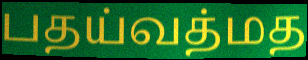
பதய்வத்மத